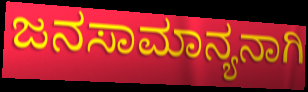
ಜನಸಾಮಾನ್ಯನಾಗಿ